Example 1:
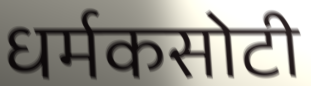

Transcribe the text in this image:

धर्मकसोटी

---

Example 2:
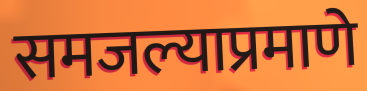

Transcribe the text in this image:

समजल्याप्रमाणे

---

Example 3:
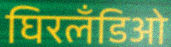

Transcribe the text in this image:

घिरलँडिओ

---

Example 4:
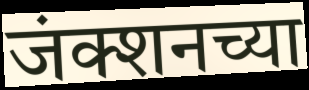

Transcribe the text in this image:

जंक्शनच्या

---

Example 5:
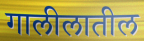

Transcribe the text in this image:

गालीलातील